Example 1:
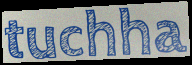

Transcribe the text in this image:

tuchha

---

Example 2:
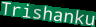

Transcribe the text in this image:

Trishanku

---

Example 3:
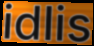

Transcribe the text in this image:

idlis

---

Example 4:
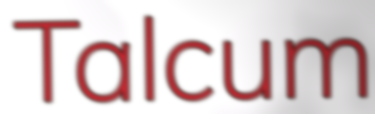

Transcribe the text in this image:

Talcum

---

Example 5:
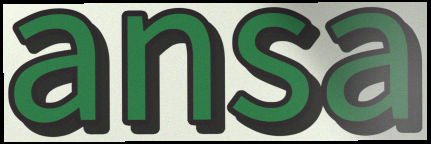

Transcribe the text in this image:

ansa